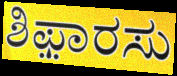
ಶಿಫ಼ಾರಸು